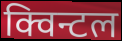
क्विन्टल